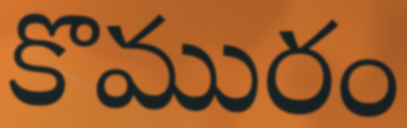
కొమురం